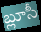
బ్లూసీ